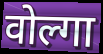
वोल्गा